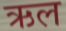
ऋल